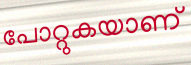
പോറ്റുകയാണ്